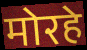
मोरहे